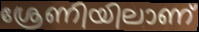
ശ്രേണിയിലാണ്